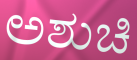
ಅಶುಚಿ